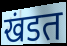
खंडत